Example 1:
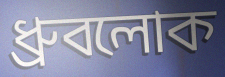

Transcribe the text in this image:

ধ্রুবলোক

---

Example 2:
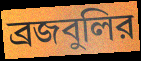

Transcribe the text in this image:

ব্রজবুলির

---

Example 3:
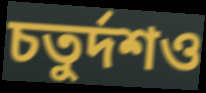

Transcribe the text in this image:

চতুর্দশও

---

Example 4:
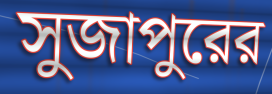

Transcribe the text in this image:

সুজাপুরের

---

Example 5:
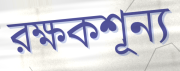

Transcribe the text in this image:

রক্ষকশূন্য